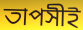
তাপসীই